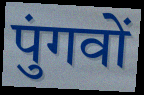
पुंगवों